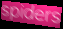
spiders